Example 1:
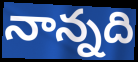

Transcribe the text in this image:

నాన్నది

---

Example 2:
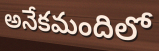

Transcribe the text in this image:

అనేకమందిలో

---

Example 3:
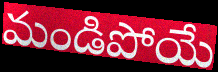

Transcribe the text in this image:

మండిపోయే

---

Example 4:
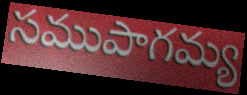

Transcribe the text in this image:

సముపాగమ్య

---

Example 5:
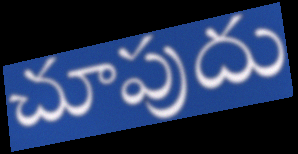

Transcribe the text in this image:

చూపుదు